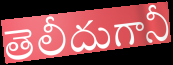
తెలీదుగానీ